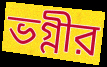
ভগ্নীর